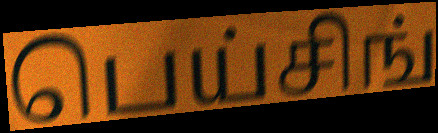
பெய்சிங்